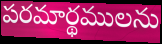
పరమార్థములను